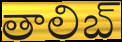
తాలిబ్